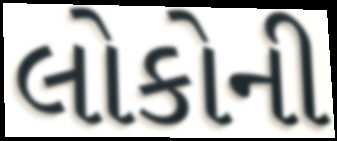
લોકોની